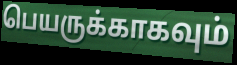
பெயருக்காகவும்